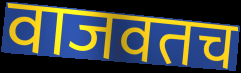
वाजवतच